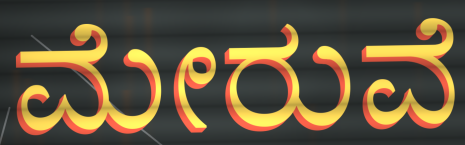
ಮೇರುವೆ